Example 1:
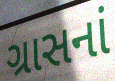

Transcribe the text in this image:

ગ્રાસનાં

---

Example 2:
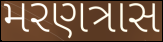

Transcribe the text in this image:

મરણત્રાસ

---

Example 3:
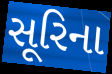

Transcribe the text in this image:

સૂરિના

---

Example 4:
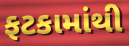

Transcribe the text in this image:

ફટકામાંથી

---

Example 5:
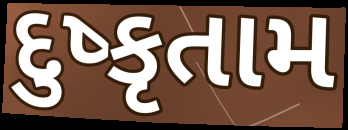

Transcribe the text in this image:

દુષ્કૃતામ